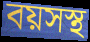
বয়সস্থ